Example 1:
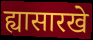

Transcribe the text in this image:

ह्यासारखे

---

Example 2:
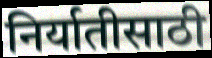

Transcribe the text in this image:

निर्यातीसाठी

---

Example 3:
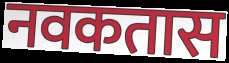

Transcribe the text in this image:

नवकतास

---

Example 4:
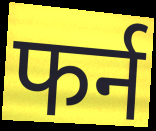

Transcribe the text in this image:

फर्न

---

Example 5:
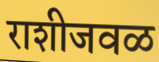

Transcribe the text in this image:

राशीजवळ